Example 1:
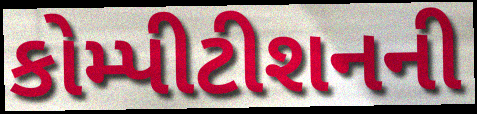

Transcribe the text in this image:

કોમ્પીટીશનની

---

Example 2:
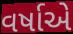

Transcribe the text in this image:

વર્ષાએ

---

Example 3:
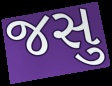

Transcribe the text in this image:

જસુ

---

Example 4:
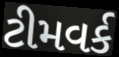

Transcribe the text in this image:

ટીમવર્ક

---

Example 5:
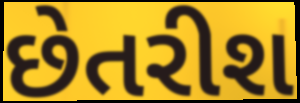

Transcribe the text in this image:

છેતરીશ